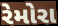
રેમોરા